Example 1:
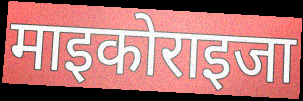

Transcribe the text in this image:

माइकोराइजा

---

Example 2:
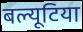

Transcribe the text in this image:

बल्यूटिया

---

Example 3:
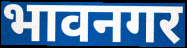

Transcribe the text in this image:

भावनगर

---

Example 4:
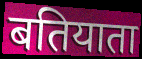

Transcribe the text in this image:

बतियाता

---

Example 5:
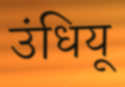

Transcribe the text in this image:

उंधियू